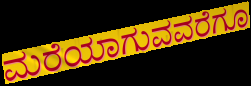
ಮರೆಯಾಗುವವರೆಗೂ